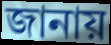
জানায়